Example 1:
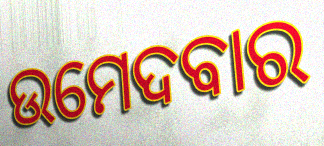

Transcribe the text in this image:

ଉମେଦବାର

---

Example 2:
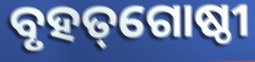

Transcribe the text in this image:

ବୃହତ୍‌ଗୋଷ୍ଠୀ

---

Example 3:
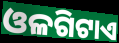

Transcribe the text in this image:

ଓଳଗିଟାଏ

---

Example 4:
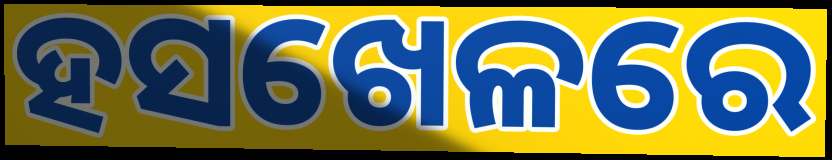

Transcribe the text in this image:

ହସଖେଳରେ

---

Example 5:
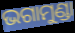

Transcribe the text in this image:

ଭଗାମୁଣ୍ଡା